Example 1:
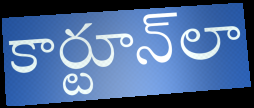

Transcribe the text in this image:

కార్టూన్‌లా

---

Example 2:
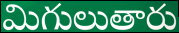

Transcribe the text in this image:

మిగులుతారు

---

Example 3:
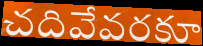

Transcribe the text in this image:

చదివేవరకూ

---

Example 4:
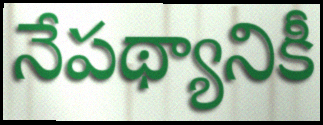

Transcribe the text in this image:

నేపథ్యానికీ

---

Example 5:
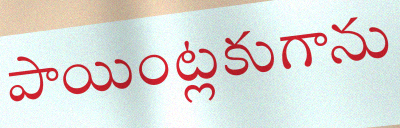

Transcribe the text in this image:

పాయింట్లకుగాను